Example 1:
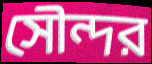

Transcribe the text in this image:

সৌন্দর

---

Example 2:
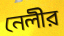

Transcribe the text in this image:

নেলীর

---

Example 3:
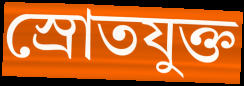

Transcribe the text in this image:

স্রোতযুক্ত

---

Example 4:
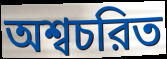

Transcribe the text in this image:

অশ্বচরিত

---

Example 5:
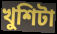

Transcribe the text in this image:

খুশিটা